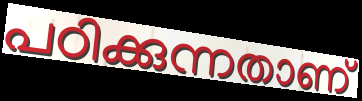
പഠിക്കുന്നതാണ്